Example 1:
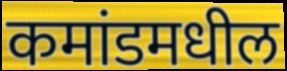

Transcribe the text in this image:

कमांडमधील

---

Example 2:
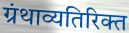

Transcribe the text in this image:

ग्रंथाव्यतिरिक्त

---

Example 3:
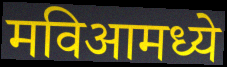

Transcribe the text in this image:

मविआमध्ये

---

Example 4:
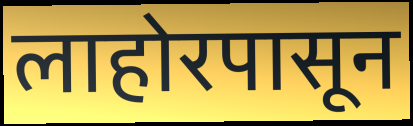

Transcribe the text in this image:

लाहोरपासून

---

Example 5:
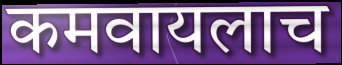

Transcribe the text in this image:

कमवायलाच